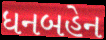
ધનબહેન